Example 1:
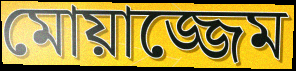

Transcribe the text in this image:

মোয়াজ্জেম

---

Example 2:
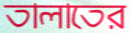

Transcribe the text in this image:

তালাতের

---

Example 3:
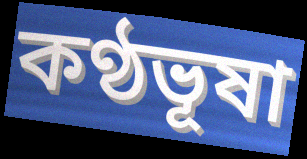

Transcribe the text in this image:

কণ্ঠভূষা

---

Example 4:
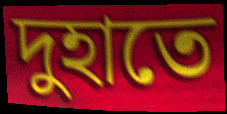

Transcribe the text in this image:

দুহাতে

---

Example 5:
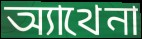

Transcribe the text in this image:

অ্যাথেনা